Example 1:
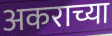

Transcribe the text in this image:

अकराच्या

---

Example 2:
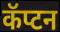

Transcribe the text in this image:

कॅप्टन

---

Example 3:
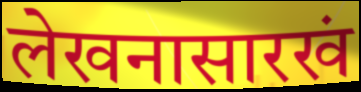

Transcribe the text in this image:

लेखनासारखं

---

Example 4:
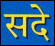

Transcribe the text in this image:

सदे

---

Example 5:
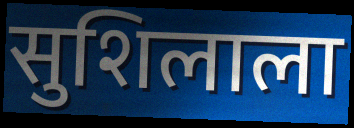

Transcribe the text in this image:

सुशिलाला